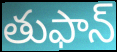
తుఫాన్